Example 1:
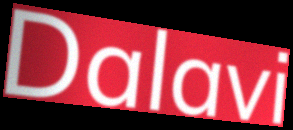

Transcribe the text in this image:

Dalavi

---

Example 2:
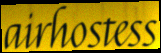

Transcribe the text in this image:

airhostess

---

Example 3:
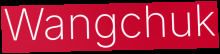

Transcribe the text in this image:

Wangchuk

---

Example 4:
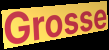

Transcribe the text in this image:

Grosse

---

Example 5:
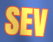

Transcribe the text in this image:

SEV